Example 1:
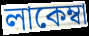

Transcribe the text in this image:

লাকেম্বা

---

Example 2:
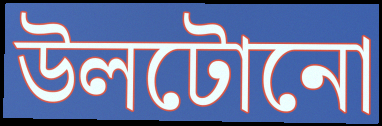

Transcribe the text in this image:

উলটোনো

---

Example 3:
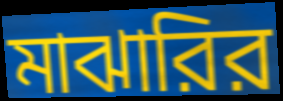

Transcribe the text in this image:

মাঝারির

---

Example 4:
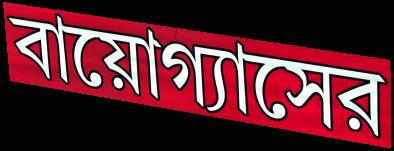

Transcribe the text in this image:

বায়োগ্যাসের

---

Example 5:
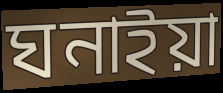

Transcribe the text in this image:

ঘনাইয়া